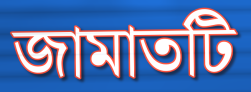
জামাতটি